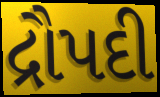
દ્રૌપદી